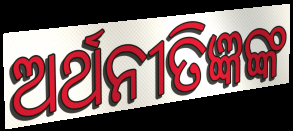
ଅର୍ଥନୀତିଜ୍ଞଙ୍କ